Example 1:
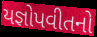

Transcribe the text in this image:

યજ્ઞોપવીતનો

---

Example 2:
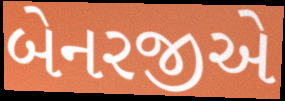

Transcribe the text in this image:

બેનરજીએ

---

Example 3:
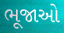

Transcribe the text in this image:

ભૂજાઓ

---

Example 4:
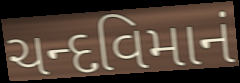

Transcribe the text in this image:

ચન્દવિમાનં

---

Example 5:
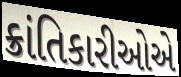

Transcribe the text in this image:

ક્રાંતિકારીઓએ